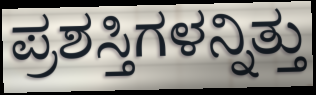
ಪ್ರಶಸ್ತಿಗಳನ್ನಿತ್ತು